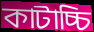
কাটাচ্চি